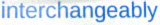
interchangeably